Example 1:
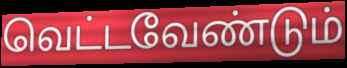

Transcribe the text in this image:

வெட்டவேண்டும்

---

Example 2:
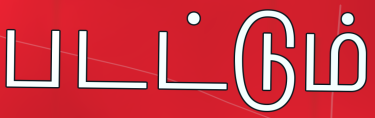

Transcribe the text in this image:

படட்டும்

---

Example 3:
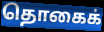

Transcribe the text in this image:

தொகைக்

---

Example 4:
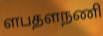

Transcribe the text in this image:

ளபதளநணி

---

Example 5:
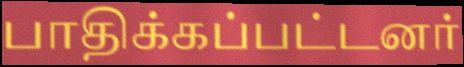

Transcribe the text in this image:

பாதிக்கப்பட்டனர்